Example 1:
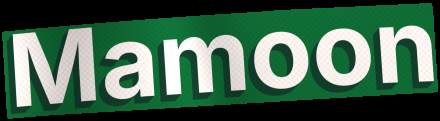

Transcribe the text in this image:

Mamoon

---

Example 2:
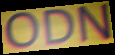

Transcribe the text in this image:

ODN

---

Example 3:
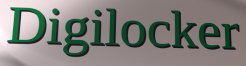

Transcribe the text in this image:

Digilocker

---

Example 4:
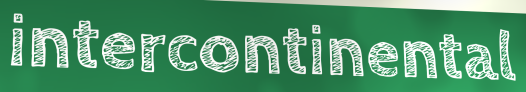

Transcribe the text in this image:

intercontinental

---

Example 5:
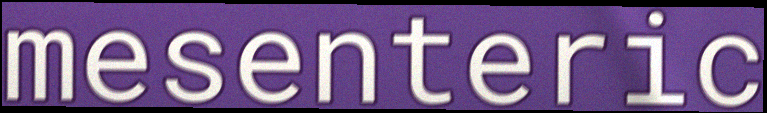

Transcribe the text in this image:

mesenteric